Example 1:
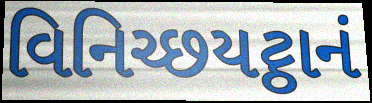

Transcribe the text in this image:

વિનિચ્છયટ્ઠાનં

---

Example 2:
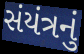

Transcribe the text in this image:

સંયંત્રનું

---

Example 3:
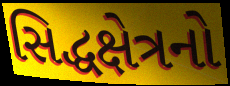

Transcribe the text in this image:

સિદ્ધક્ષેત્રનો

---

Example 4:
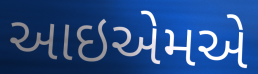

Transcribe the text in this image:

આઇએમએ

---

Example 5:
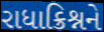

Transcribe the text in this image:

રાધાક્રિશ્નને